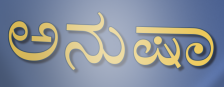
ಅನುಷಾ